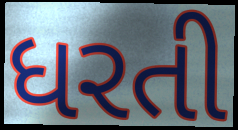
ધરતી